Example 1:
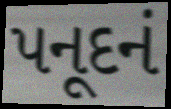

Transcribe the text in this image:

પનૂદનં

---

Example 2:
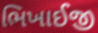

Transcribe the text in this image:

ભિખાઈજી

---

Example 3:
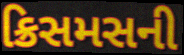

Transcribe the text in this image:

ક્રિસમસની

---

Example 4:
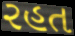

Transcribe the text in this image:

રહત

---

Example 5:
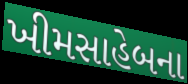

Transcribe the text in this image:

ખીમસાહેબના